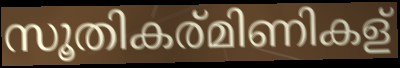
സൂതികര്മിണികള്